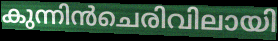
കുന്നിൻചെരിവിലായി